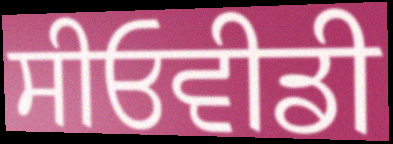
ਸੀਓਵੀਡੀ